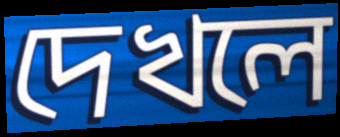
দেখলে